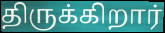
திருக்கிறார்